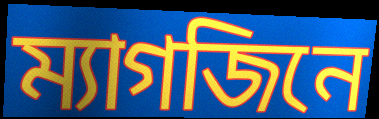
ম্যাগজিনে